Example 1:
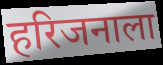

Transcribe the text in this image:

हरिजनाला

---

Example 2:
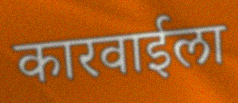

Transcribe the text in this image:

कारवाईला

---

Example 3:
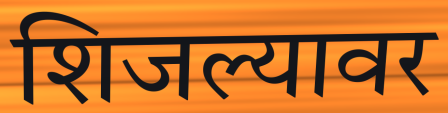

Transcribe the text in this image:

शिजल्यावर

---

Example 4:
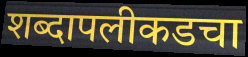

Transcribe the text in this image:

शब्दापलीकडचा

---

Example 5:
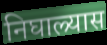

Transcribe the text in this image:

निघाल्यास